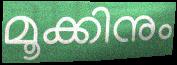
മൂക്കിനും